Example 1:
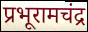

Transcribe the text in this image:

प्रभूरामचंद्र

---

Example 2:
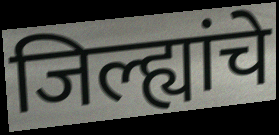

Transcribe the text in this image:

जिल्ह्यांचे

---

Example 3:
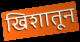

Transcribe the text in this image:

खिशातून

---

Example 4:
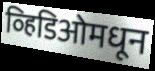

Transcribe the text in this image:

व्हिडिओमधून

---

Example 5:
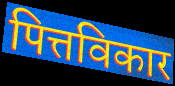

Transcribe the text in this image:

पित्तविकार